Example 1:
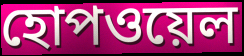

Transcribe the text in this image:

হোপওয়েল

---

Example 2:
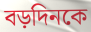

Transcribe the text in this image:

বড়দিনকে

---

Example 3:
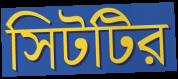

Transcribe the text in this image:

সিটটির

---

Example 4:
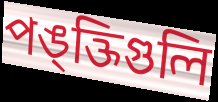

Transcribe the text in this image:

পঙ্‌ক্তিগুলি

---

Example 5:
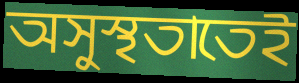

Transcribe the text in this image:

অসুস্থতাতেই